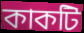
কাকটি